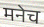
मनेच